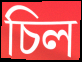
চিল